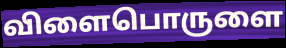
விளைபொருளை